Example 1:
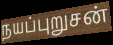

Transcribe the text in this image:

நயப்புறுசன்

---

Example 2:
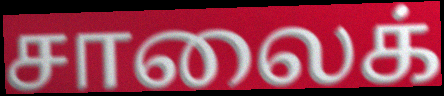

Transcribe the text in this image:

சாலைக்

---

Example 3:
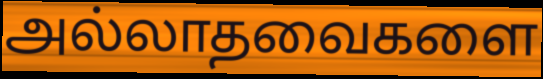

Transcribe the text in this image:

அல்லாதவைகளை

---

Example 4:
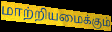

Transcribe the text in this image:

மாற்றியமைக்கும்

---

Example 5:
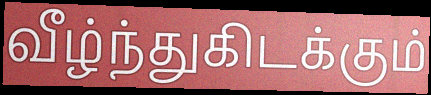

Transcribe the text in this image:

வீழ்ந்துகிடக்கும்